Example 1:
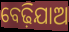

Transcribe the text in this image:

ବେଢ଼ିଯାଅ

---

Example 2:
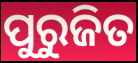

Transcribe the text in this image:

ପୁରୁଜିତ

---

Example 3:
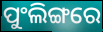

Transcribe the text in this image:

ପୁଂଲିଙ୍ଗରେ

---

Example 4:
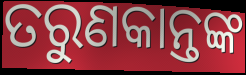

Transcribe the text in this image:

ତରୁଣକାନ୍ତଙ୍କ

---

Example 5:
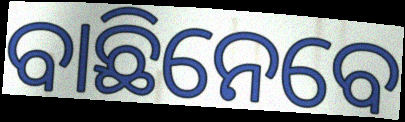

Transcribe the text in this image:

ବାଛିନେବେ